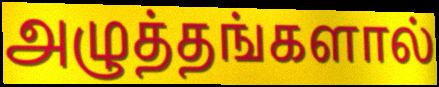
அழுத்தங்களால்